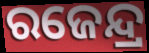
ରଜେନ୍ଦ୍ର